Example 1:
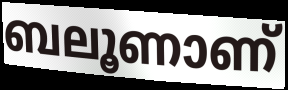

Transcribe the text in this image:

ബലൂണാണ്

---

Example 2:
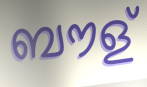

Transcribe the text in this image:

ബൗള്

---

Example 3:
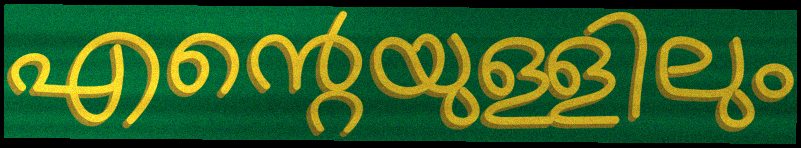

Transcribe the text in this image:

എന്റെയുള്ളിലും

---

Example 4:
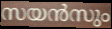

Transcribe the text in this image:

സയൻസും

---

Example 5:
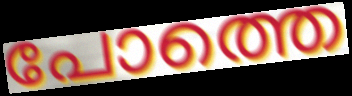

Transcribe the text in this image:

പോത്തെ